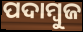
ପଦାମ୍ବୁଜ